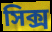
সিক্স